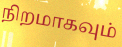
நிறமாகவும்